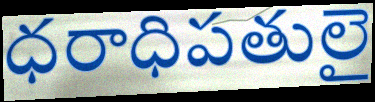
ధరాధిపతులై